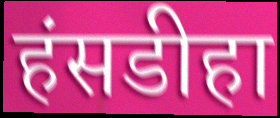
हंसडीहा